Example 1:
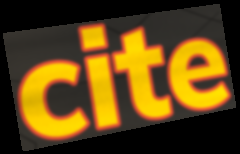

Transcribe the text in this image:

cite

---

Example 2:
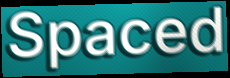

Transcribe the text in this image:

Spaced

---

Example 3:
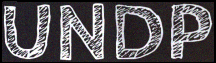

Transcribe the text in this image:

UNDP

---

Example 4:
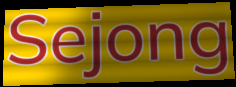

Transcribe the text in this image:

Sejong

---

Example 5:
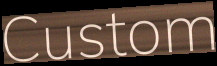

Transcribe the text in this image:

Custom